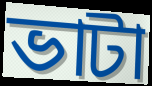
ভাটা